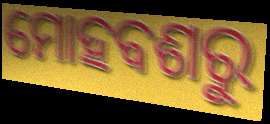
ମୋହବଶରୁ